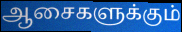
ஆசைகளுக்கும்